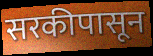
सरकीपासून